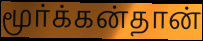
மூர்க்கன்தான்